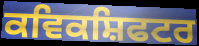
ਕਵਿਕਸ਼ਿਫਟਰ